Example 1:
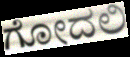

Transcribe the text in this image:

ಗೋದಲಿ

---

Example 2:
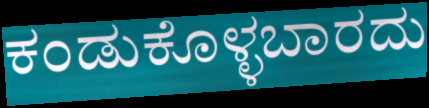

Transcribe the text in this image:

ಕಂಡುಕೊಳ್ಳಬಾರದು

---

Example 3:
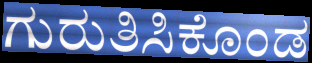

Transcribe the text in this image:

ಗುರುತಿಸಿಕೊಂಡ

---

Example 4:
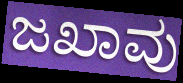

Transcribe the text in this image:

ಜಖಾವು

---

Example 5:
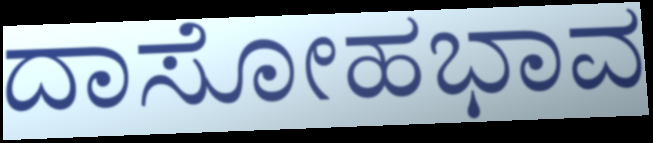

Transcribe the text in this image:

ದಾಸೋಹಭಾವ